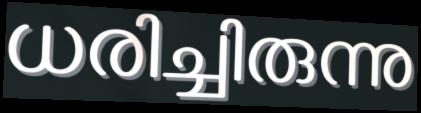
ധരിച്ചിരുന്നു